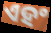
ଏହଂ